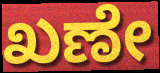
ಖಣೇ